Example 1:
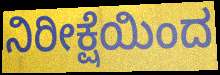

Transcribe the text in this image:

ನಿರೀಕ್ಷೆಯಿಂದ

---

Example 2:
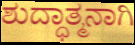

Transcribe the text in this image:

ಶುದ್ಧಾತ್ಮನಾಗಿ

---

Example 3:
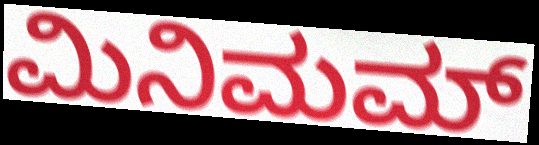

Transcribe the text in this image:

ಮಿನಿಮಮ್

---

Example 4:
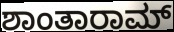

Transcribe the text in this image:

ಶಾಂತಾರಾಮ್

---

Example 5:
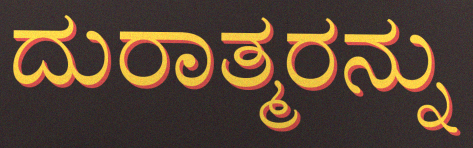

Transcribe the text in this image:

ದುರಾತ್ಮರನ್ನು